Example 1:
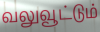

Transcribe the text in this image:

வலுவூட்டும்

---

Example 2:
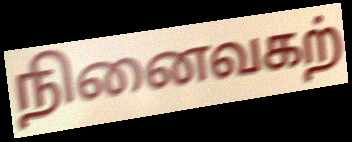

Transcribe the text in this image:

நினைவகற்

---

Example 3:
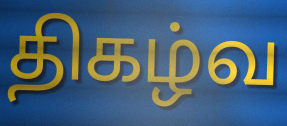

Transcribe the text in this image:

திகழ்வ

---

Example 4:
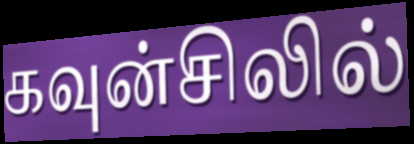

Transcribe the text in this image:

கவுன்சிலில்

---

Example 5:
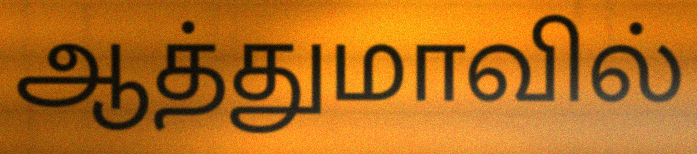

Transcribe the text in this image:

ஆத்துமாவில்